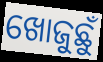
ଖୋଜୁଛୁଁ